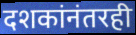
दशकांनंतरही